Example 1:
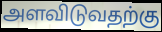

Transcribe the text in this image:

அளவிடுவதற்கு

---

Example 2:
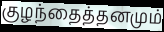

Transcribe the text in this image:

குழந்தைத்தனமும்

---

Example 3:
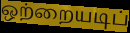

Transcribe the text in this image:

ஒற்றையடிப்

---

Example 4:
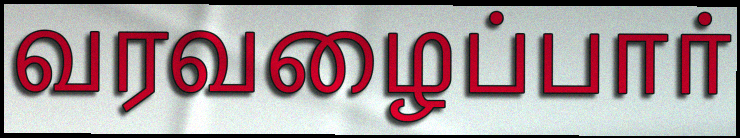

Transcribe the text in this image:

வரவழைப்பார்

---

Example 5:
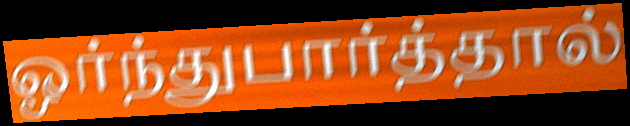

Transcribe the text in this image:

ஓர்ந்துபார்த்தால்